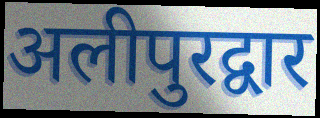
अलीपुरद्वार